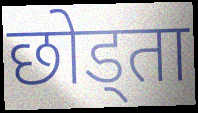
छोड्ता